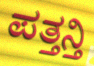
ಪತ್ತನ್ತಿ